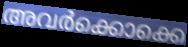
അവർക്കൊക്കെ